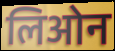
लिओन